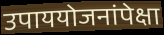
उपाययोजनांपेक्षा